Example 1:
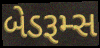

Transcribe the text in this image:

બેડરૂમ્સ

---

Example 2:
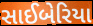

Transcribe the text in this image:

સાઈબેરિયા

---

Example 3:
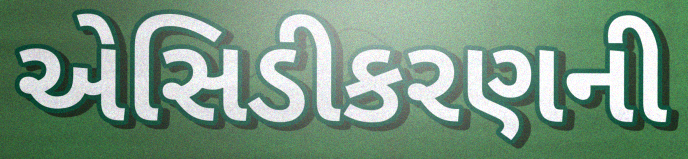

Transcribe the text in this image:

એસિડીકરણની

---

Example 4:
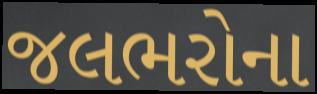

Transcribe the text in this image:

જલભરોના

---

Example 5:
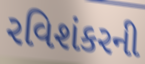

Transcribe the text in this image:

રવિશંકરની